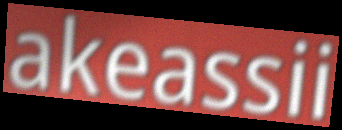
akeassii